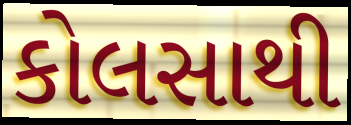
કોલસાથી